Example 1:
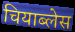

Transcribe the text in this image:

चियाब्लेस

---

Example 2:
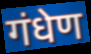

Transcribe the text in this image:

गंधेण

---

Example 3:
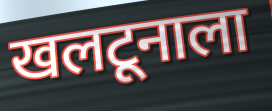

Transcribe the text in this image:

खलटूनाला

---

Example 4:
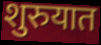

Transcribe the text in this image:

शुरुयात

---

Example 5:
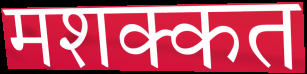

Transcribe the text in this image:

मशक्‍कत